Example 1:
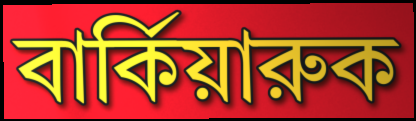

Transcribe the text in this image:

বার্কিয়ারুক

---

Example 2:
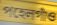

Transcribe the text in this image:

পহেলগাঁও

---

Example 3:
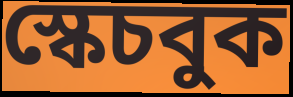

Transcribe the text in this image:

স্কেচবুক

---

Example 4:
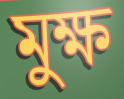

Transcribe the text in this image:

মুক্ষ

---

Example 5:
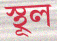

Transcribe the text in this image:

স্থূল